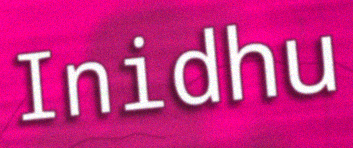
Inidhu